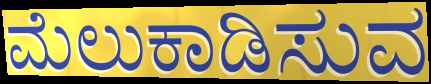
ಮೆಲುಕಾಡಿಸುವ